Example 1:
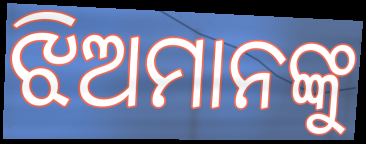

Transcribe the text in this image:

ଝିଅମାନଙ୍କୁ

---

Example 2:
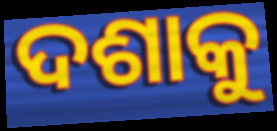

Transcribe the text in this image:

ଦଶାକୁ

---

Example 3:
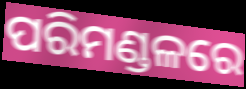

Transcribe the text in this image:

ପରିମଣ୍ଡଳରେ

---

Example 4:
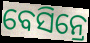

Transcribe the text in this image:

ବେସିନ୍ରେ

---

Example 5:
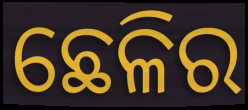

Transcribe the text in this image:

ଛେଳିର